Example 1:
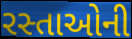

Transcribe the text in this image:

રસ્તાઓની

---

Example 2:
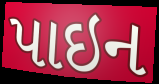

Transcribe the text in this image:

પાઇન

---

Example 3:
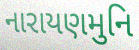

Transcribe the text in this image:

નારાયણમુનિ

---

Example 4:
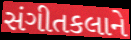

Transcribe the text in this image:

સંગીતકલાને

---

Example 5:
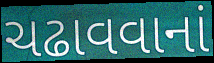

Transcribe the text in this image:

ચઢાવવાનાં